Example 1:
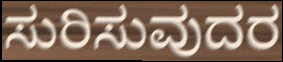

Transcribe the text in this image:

ಸುರಿಸುವುದರ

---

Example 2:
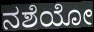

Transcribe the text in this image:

ನಶೆಯೋ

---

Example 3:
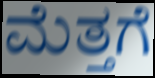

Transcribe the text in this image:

ಮೆತ್ತಗೆ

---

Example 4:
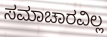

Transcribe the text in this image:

ಸಮಾಚಾರವಿಲ್ಲ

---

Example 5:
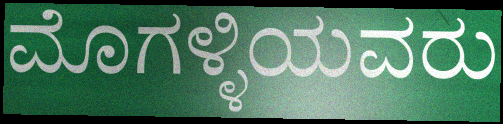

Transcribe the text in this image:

ಮೊಗಳ್ಳಿಯವರು